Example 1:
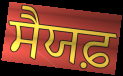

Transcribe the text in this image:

ਸੈਯਫ਼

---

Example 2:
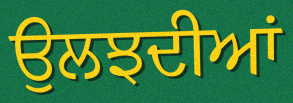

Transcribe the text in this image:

ਉਲਝਦੀਆਂ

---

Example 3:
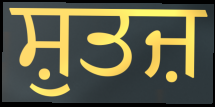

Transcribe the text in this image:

ਸ਼ੁਤਜ਼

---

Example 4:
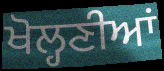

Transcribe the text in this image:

ਖੋਲ੍ਹਣੀਆਂ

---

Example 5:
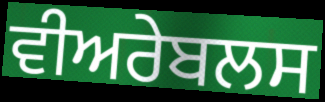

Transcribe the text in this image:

ਵੀਅਰੇਬਲਸ